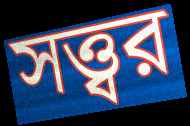
সত্ত্বর